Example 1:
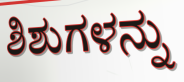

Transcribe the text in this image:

ಶಿಶುಗಳನ್ನು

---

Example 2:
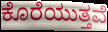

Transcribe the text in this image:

ಕೊರೆಯುತ್ತವೆ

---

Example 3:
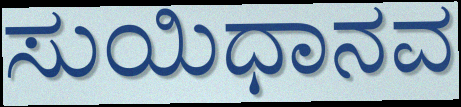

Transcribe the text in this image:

ಸುಯಿಧಾನವ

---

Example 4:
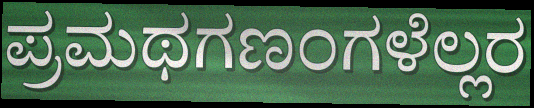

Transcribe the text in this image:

ಪ್ರಮಥಗಣಂಗಳೆಲ್ಲರ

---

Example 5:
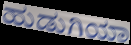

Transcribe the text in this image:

ಹುಡುಗಿಯಾ